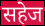
सहेज